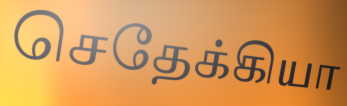
செதேக்கியா